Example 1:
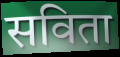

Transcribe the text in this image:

सविता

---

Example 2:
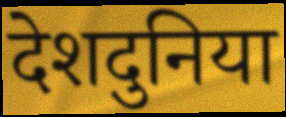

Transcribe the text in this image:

देशदुनिया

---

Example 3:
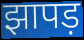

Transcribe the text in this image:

झापड़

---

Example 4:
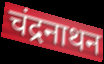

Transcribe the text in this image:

चंद्रनाथन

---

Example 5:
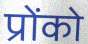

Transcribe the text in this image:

प्रोंको